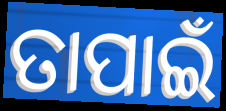
ତାପାଇଁ